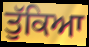
ਤੁੱਕਿਆ